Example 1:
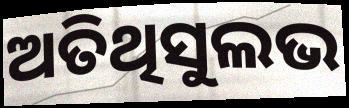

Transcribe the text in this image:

ଅତିଥିସୁଲଭ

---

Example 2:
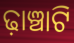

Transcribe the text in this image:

ଢ଼ାଞ୍ଚାଟି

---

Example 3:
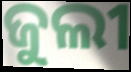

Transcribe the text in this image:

ଜୁଲୀ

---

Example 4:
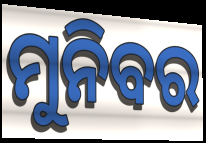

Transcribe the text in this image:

ମୁନିବର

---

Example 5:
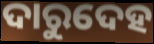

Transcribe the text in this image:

ଦାରୁଦେହ